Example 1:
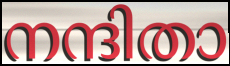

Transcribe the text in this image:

നന്ദിതാ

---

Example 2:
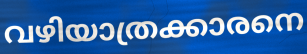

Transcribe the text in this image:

വഴിയാത്രക്കാരനെ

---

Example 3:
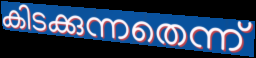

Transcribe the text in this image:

കിടക്കുന്നതെന്ന്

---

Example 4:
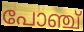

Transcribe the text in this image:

പോഞ്ച്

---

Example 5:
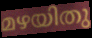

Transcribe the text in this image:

മഴയിതു